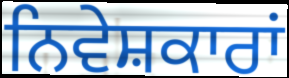
ਨਿਵੇਸ਼ਕਾਰਾਂ